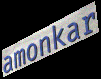
amonkar